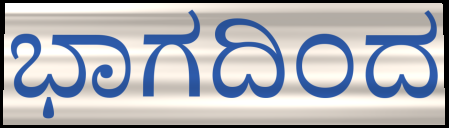
ಭಾಗದಿಂದ